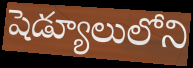
షెడ్యూలులోని